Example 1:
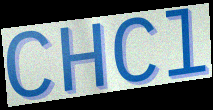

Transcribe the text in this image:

CHCl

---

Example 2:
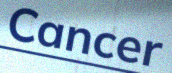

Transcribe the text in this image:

Cancer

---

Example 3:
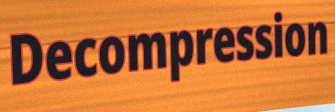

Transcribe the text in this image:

Decompression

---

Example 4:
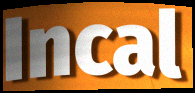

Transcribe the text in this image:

Incal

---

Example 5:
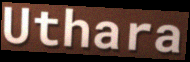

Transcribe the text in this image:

Uthara